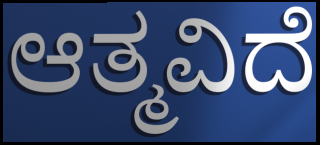
ಆತ್ಮವಿದೆ